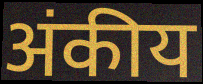
अंकीय